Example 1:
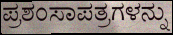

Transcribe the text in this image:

ಪ್ರಶಂಸಾಪತ್ರಗಳನ್ನು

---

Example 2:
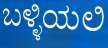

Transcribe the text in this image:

ಬಳ್ಳಿಯಲಿ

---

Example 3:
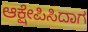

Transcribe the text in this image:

ಆಕ್ಷೇಪಿಸಿದಾಗ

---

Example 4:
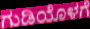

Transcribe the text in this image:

ಗುಡಿಯೊಳಗೆ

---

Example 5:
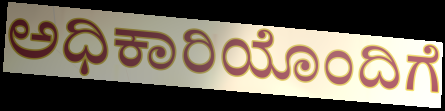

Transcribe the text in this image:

ಅಧಿಕಾರಿಯೊಂದಿಗೆ